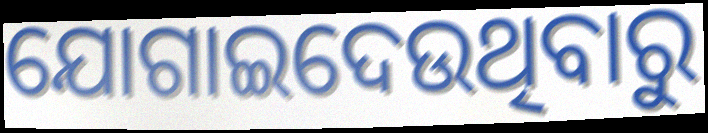
ଯୋଗାଇଦେଉଥିବାରୁ